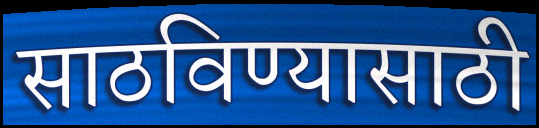
साठविण्यासाठी